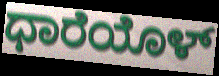
ಧಾರೆಯೊಳ್